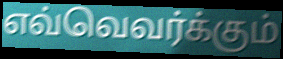
எவ்வெவர்க்கும்